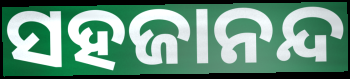
ସହଜାନନ୍ଦ